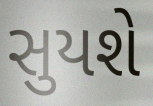
સુયશે